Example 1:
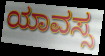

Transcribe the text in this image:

ಯಾವಸ್ಸ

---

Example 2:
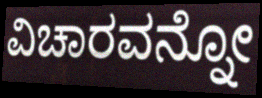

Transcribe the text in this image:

ವಿಚಾರವನ್ನೋ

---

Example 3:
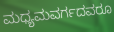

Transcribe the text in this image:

ಮಧ್ಯಮವರ್ಗದವರೂ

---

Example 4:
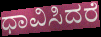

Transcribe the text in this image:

ಧಾವಿಸಿದರೆ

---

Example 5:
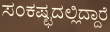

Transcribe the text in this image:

ಸಂಕಷ್ಟದಲ್ಲಿದ್ದಾರೆ